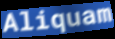
Aliquam